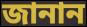
জানান